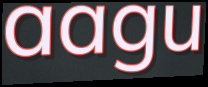
aagu